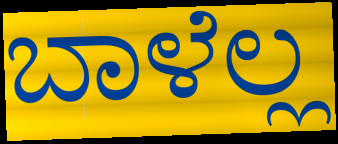
ಬಾಳೆಲ್ಲ